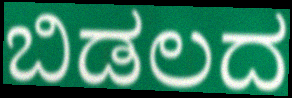
ಬಿಡಲದ